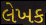
લેખક